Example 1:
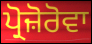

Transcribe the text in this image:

ਪ੍ਰੋਜ਼ੋਰੋਵਾ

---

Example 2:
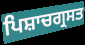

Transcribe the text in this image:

ਪਿਸ਼ਾਚਗ੍ਰਸਤ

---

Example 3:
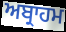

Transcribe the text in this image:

ਅਬ੍ਰਾਹਮ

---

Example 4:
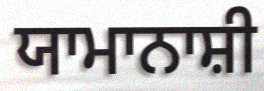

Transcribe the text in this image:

ਯਾਮਾਨਾਸ਼ੀ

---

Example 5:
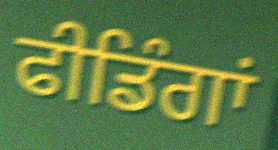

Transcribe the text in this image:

ਫੀਡਿੰਗਾਂ